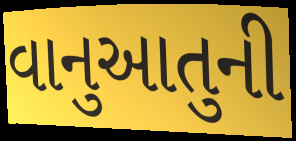
વાનુઆતુની